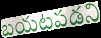
బయటపడని